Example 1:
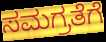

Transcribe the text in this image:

ಸಮಗ್ರತೆಗೆ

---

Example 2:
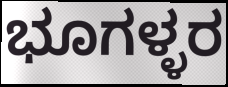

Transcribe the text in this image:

ಭೂಗಳ್ಳರ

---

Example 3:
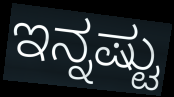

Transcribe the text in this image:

ಇನ್ನಷ್ಟು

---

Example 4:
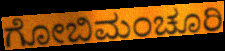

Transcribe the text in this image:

ಗೋಬಿಮಂಚೂರಿ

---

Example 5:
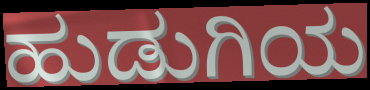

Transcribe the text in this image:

ಹುಡುಗಿಯ